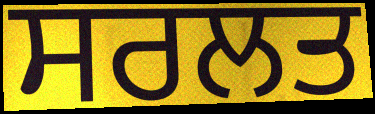
ਸਰਲਤ